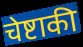
चेष्टाकी